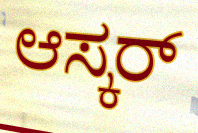
ಆಸ್ಕರ್